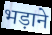
भड़ाने